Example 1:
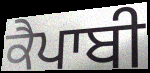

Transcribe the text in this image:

ਕੈਪਾਬੀ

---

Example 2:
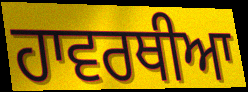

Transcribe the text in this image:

ਹਾਵਰਥੀਆ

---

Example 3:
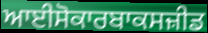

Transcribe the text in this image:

ਆਈਸੋਕਾਰਬਾਕਸਜ਼ੀਡ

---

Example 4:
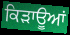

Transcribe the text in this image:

ਕਿੜਾਊਆਂ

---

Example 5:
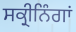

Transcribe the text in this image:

ਸਕ੍ਰੀਨਿੰਗਾਂ